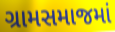
ગ્રામસમાજમાં